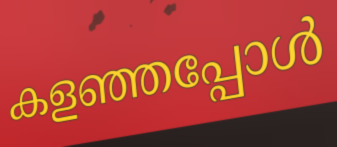
കളഞ്ഞപ്പോൾ